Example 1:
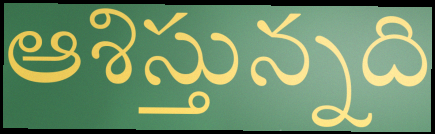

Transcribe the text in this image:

ఆశిస్తున్నది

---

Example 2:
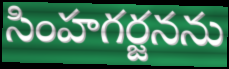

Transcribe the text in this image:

సింహగర్జనను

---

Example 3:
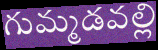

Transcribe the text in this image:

గుమ్మడవల్లి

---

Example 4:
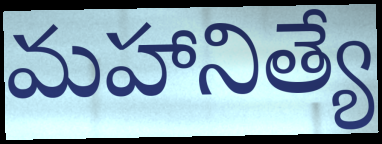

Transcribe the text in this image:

మహానిత్యే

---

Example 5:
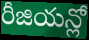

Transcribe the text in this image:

రీజియన్లో